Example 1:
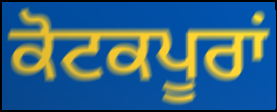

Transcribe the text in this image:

ਕੋਟਕਪੂਰਾਂ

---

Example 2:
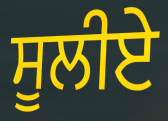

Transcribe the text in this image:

ਸੂਲੀਏ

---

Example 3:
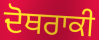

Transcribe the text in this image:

ਦੋਥਰਾਕੀ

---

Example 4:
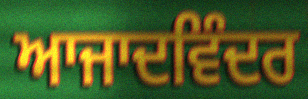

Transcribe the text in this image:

ਆਜਾਦਵਿੰਦਰ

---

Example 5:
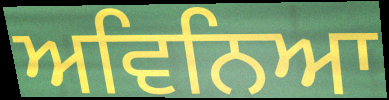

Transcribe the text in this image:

ਅਵਿਨਿਆ